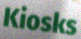
Kiosks